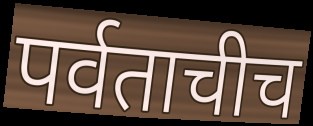
पर्वताचीच